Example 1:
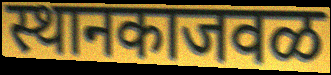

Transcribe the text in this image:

स्थानकाजवळ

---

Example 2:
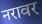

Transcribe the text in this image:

नरावर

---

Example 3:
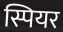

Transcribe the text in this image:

स्पियर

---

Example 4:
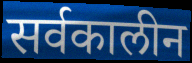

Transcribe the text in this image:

सर्वकालीन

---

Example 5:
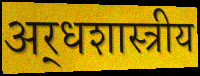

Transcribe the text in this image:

अर्धशास्त्रीय